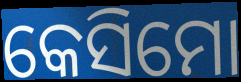
କେସିମୋ